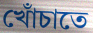
খোঁচাতে